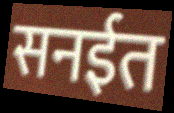
सनईत